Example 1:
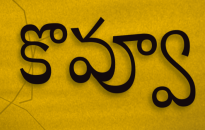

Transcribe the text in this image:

కొవ్వూ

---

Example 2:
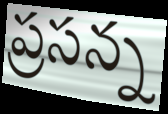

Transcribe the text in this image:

ప్రసన్న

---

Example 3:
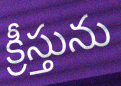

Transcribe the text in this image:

క్రీస్తును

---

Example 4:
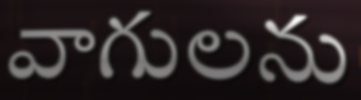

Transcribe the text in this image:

వాగులను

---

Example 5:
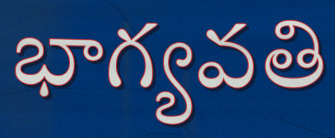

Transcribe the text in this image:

భాగ్యవతి